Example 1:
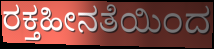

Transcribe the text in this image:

ರಕ್ತಹೀನತೆಯಿಂದ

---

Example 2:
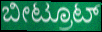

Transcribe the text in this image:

ಬೀಟ್ರೂಟ್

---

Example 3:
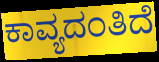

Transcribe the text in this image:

ಕಾವ್ಯದಂತಿದೆ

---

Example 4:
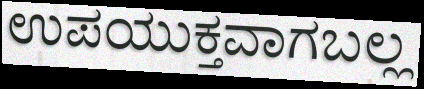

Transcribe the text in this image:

ಉಪಯುಕ್ತವಾಗಬಲ್ಲ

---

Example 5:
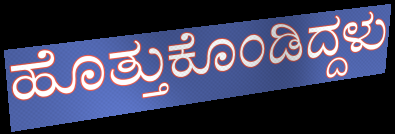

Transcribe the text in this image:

ಹೊತ್ತುಕೊಂಡಿದ್ದಳು